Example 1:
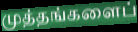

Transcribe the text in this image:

முத்தங்களைப்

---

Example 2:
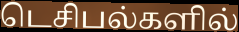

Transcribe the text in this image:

டெசிபல்களில்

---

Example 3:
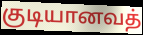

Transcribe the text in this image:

குடியானவத்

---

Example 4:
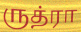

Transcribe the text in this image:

ருத்ரா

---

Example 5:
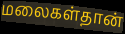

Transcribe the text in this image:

மலைகள்தான்